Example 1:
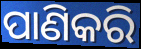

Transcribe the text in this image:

ପାଣିକରି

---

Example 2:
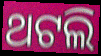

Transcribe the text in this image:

ଥଟଲି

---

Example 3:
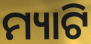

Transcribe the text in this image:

ମ୍ୟାଟି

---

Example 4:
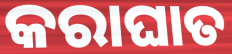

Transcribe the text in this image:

କରାଘାତ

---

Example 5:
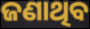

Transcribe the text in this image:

ଜଣାଥିବ